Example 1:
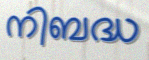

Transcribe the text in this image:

നിബദ്ധ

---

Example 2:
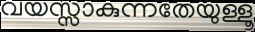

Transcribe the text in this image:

വയസ്സാകുന്നതേയുള്ളൂ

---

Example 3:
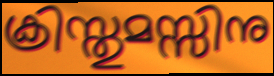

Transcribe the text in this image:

ക്രിസ്തുമസ്സിനു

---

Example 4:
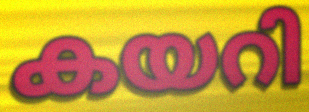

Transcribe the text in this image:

കയറി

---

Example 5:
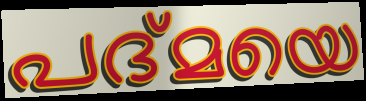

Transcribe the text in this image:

പദ്മയെ